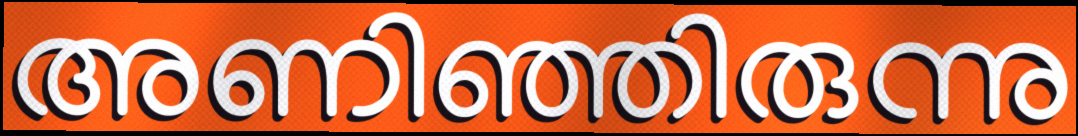
അണിഞ്ഞിരുന്നു